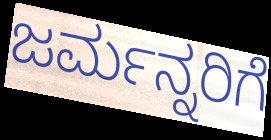
ಜರ್ಮನ್ನರಿಗೆ